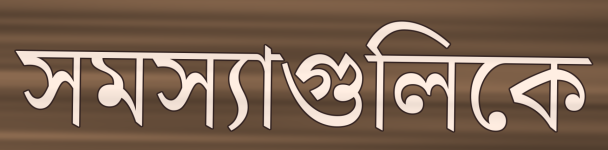
সমস্যাগুলিকে